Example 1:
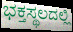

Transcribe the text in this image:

ಭಕ್ತಸ್ಥಲದಲ್ಲಿ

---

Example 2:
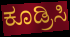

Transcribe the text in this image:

ಕೂಡ್ರಿಸಿ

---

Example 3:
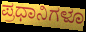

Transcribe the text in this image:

ಪ್ರಧಾನಿಗಳೂ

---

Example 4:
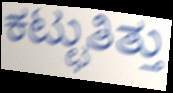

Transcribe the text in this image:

ಕಟ್ಟುತಿತ್ತು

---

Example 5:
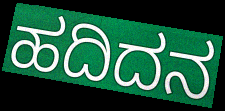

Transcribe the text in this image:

ಹದಿದನ